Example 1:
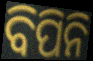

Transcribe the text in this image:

ବିପିନି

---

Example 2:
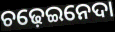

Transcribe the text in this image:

ଚଢ଼େଇନେଦା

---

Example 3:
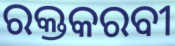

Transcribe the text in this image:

ରକ୍ତକରବୀ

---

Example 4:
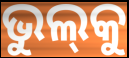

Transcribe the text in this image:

ଭୁଲ୍‍କୁ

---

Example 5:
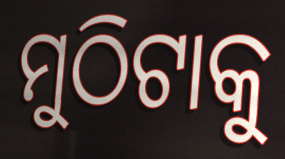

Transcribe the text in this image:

ମୁଠିଟାକୁ